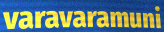
varavaramuni